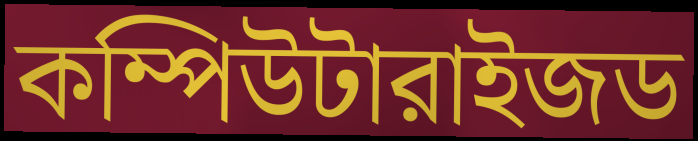
কম্পিউটারাইজড